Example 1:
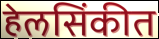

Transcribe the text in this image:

हेलसिंकीत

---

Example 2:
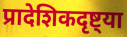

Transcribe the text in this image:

प्रादेशिकदृष्ट्या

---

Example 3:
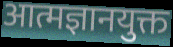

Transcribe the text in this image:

आत्मज्ञानयुक्त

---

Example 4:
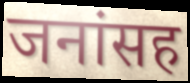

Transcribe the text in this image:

जनांसह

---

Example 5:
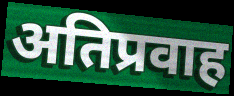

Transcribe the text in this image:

अतिप्रवाह